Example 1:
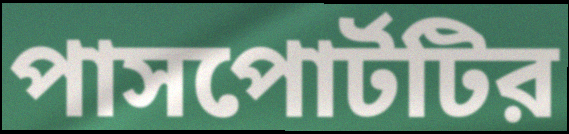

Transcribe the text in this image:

পাসপোর্টটির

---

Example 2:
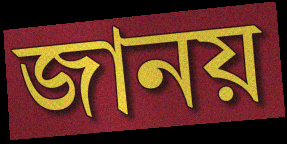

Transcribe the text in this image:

জানয়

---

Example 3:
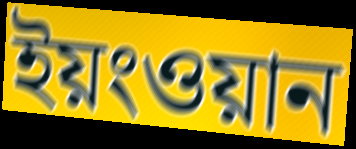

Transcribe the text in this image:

ইয়ংওয়ান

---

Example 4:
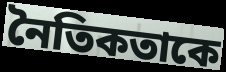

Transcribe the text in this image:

নৈতিকতাকে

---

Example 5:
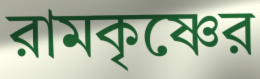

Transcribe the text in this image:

রামকৃষ্ণের